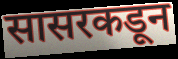
सासरकडून